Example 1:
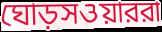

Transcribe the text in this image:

ঘোড়সওয়াররা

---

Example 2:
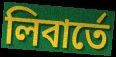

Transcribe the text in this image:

লিবার্তে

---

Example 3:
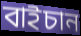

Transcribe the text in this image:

বাইচান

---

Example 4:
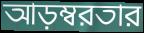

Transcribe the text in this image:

আড়ম্বরতার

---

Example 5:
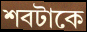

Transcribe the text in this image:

শবটাকে